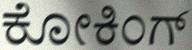
ಕೋಕಿಂಗ್